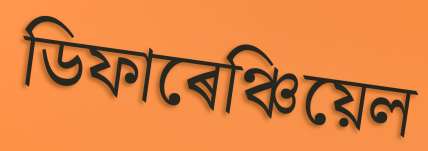
ডিফাৰেঞ্চিয়েল